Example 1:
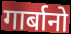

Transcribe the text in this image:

गार्बानो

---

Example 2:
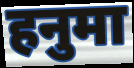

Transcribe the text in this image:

हनुमा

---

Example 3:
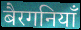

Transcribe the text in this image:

बैरगनियाँ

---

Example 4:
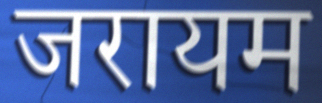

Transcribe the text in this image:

जरायम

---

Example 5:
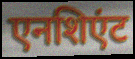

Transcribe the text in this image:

एनशिएंट